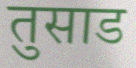
तुसाड